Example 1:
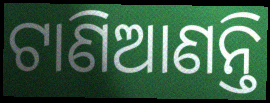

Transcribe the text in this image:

ଟାଣିଆଣନ୍ତି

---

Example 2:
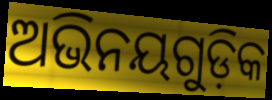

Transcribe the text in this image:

ଅଭିନୟଗୁଡ଼ିକ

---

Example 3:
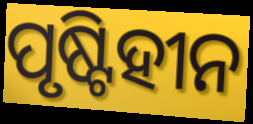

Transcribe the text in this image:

ପୃଷ୍ଟିହୀନ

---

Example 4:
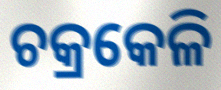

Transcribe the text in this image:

ଚକ୍ରକେଳି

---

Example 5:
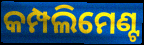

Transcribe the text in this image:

କମ୍ପଲିମେଣ୍ଟ